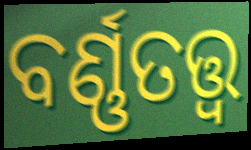
ବର୍ଣ୍ଣତତ୍ତ୍ଵ